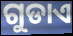
ଗୁଡାଏ